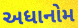
અધાનોમ